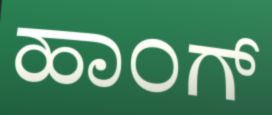
ಹಾಂಗ್